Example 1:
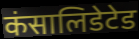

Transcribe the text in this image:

कंसालिडेटेड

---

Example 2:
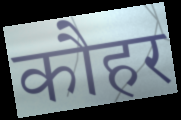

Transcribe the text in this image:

कौहर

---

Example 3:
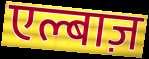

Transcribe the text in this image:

एल्बाज़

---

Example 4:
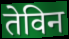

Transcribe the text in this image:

तेविन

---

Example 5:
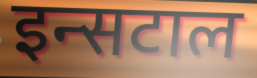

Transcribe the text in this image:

इन्सटाल